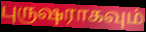
புருஷராகவும்